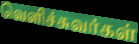
வெளிச்சுவர்கள்